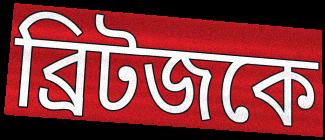
ব্রিটজকে